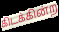
கிடக்கின்ற